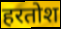
हरतोश